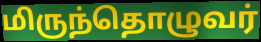
மிருந்தொழுவர்